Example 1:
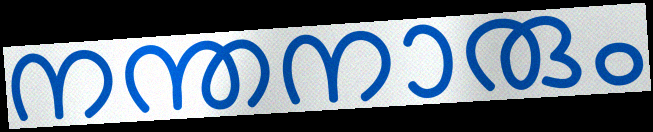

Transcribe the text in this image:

നന്തനാരും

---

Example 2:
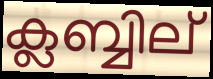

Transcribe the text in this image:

ക്ലബ്ബില്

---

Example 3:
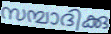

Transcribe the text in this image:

സമ്പാദിക്കു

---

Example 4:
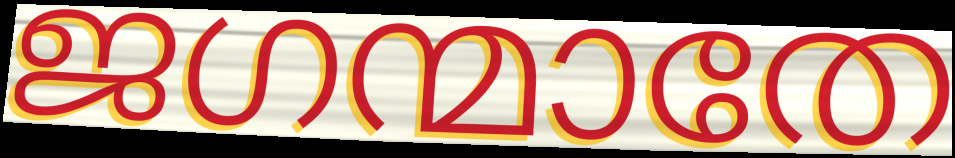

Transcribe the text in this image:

ജഗന്മാതേ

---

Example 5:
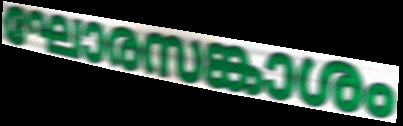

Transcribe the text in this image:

ഘോരസങ്കാശം